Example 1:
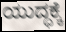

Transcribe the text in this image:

ಯುದ್ಧಕ್ಕೆ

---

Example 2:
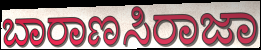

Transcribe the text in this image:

ಬಾರಾಣಸಿರಾಜಾ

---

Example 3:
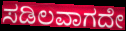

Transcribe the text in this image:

ಸಡಿಲವಾಗದೇ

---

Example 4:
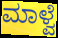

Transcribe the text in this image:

ಮಾಳ್ವೆ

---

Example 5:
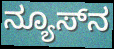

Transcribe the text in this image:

ನ್ಯೂಸ್‌ನ